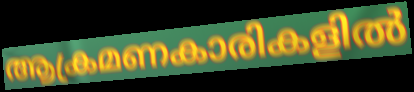
ആക്രമണകാരികളിൽ